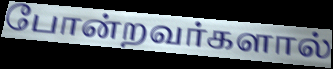
போன்றவர்களால்